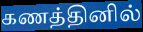
கணத்தினில்